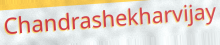
Chandrashekharvijay